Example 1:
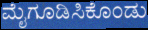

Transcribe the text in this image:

ಮೈಗೂಡಿಸಿಕೊಂಡು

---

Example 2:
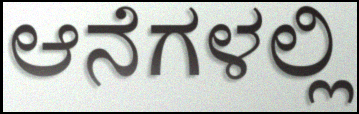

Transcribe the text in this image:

ಆನೆಗಳಲ್ಲಿ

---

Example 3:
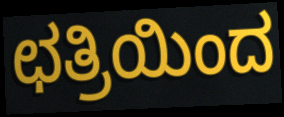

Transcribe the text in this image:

ಛತ್ರಿಯಿಂದ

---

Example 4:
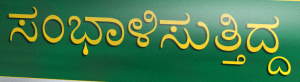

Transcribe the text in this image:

ಸಂಭಾಳಿಸುತ್ತಿದ್ದ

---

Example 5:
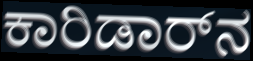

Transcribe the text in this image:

ಕಾರಿಡಾರ್‌ನ